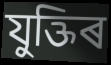
যুক্তিৰ